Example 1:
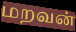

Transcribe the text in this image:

மறவன்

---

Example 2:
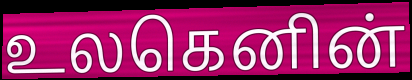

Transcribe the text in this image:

உலகெனின்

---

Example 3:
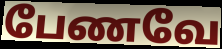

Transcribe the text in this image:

பேணவே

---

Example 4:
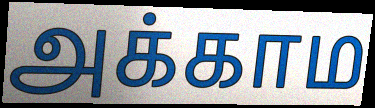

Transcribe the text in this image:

அக்காம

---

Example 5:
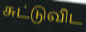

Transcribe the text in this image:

சுட்டுவிட